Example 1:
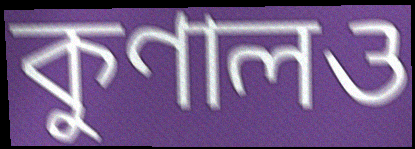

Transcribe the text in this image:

কুণালও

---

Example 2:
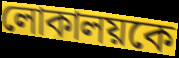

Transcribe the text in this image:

লোকালয়কে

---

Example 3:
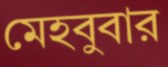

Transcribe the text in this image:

মেহবুবার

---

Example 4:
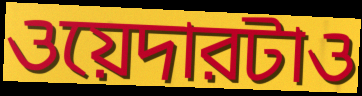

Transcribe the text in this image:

ওয়েদারটাও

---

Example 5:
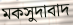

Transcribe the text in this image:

মকসুদাবাদ